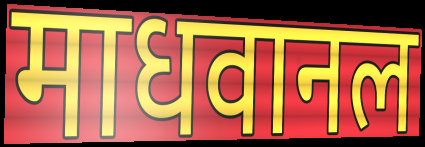
माधवानल